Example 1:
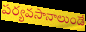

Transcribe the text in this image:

పర్యవసానాలుండే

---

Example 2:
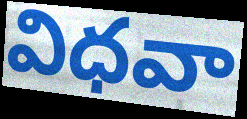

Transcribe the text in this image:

విధవా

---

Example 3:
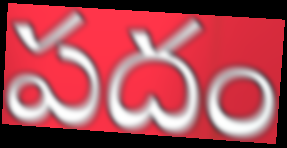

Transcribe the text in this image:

పదం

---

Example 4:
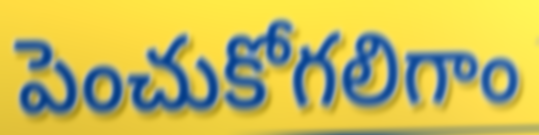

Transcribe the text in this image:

పెంచుకోగలిగాం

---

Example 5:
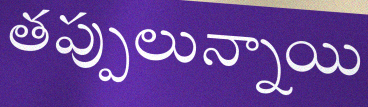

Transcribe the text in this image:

తప్పులున్నాయి